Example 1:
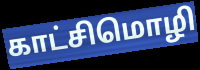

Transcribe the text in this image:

காட்சிமொழி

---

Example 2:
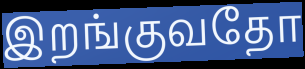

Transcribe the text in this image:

இறங்குவதோ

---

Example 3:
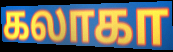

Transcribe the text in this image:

கலாகா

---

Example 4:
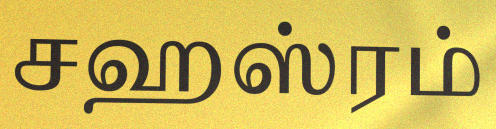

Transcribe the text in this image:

சஹஸ்ரம்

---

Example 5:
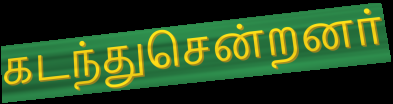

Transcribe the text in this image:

கடந்துசென்றனர்